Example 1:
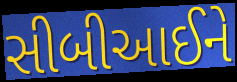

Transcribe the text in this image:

સીબીઆઈને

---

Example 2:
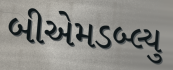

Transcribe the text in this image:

બીએમડબ્લ્યુ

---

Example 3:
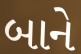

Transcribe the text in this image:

બાને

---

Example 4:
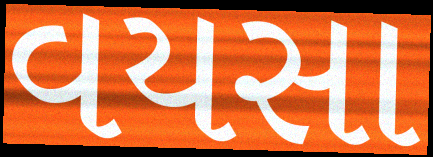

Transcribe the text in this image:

વયસા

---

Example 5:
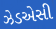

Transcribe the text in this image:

ઝેડએસી